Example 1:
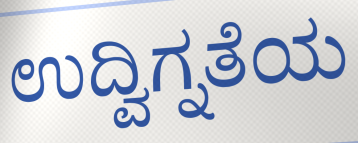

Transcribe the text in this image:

ಉದ್ವಿಗ್ನತೆಯ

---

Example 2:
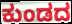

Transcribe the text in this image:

ಕುಂಡದ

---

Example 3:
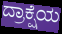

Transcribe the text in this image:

ದ್ರಾಕ್ಷೆಯ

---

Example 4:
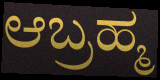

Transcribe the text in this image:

ಆಬ್ರಹ್ಮ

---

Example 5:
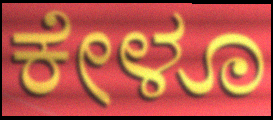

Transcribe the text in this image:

ಕೇಳೂ